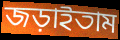
জড়াইতাম